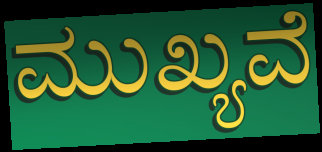
ಮುಖ್ಯವೆ